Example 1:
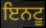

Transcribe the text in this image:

ਇਨਟੂ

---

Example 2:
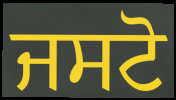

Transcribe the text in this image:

ਜਸਟੋ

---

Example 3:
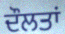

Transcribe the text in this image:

ਦੌਲਤਾਂ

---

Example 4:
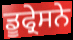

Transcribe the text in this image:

ਡੂਫ੍ਰੇਸਨੇ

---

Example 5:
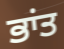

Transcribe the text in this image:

ਭਾਂਤ